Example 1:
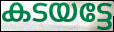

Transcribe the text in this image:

കടയട്ടേ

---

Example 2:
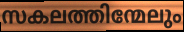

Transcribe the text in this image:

സകലത്തിന്മേലും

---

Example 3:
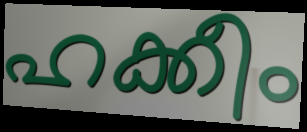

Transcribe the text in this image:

ഹക്കീം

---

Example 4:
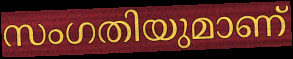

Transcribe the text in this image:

സംഗതിയുമാണ്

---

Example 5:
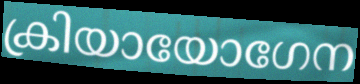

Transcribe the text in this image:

ക്രിയായോഗേന